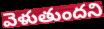
వెళుతుందని